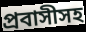
প্রবাসীসহ